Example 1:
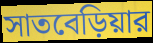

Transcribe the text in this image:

সাতবেড়িয়ার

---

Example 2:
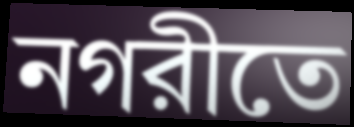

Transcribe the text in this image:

নগরীতে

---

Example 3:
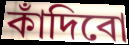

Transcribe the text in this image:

কাঁদিবো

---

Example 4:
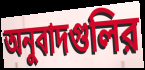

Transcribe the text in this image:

অনুবাদগুলির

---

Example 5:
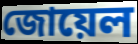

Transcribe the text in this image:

জোয়েল